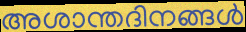
അശാന്തദിനങ്ങൾ